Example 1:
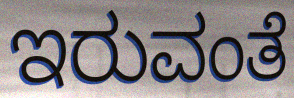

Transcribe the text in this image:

ಇರುವಂತೆ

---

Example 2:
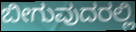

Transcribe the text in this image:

ಬೀಗುವುದರಲ್ಲಿ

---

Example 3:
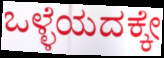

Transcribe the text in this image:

ಒಳ್ಳೆಯದಕ್ಕೇ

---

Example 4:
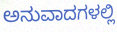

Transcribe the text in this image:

ಅನುವಾದಗಳಲ್ಲಿ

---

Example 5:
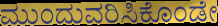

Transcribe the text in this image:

ಮುಂದುವರಿಸಿಕೊಂಡೇ